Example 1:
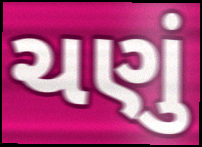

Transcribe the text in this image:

ચણું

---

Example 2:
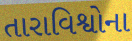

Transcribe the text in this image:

તારાવિશ્વોના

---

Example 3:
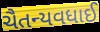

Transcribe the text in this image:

ચૈતન્યવધાઈ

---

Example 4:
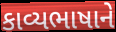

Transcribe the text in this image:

કાવ્યભાષાને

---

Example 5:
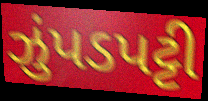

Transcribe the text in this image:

ઝુંપડપટ્ટી